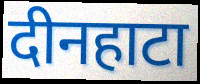
दीनहाटा